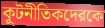
কূটনীতিকদেরকে